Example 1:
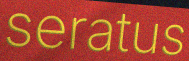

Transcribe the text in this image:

seratus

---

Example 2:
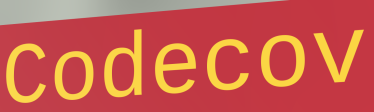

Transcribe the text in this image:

Codecov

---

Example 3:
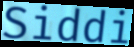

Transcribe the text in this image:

Siddi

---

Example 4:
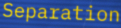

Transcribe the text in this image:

Separation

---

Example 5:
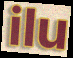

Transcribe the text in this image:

ilu